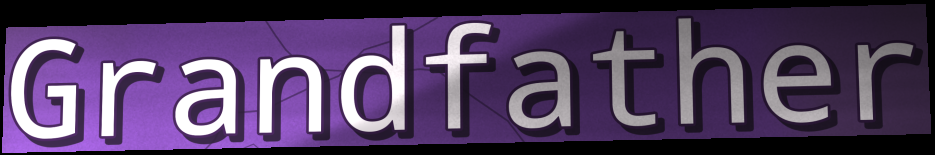
Grandfather